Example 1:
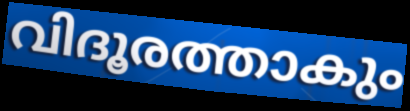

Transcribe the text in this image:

വിദൂരത്താകും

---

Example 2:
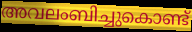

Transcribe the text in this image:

അവലംബിച്ചുകൊണ്ട്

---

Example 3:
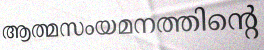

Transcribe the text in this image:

ആത്മസംയമനത്തിന്റെ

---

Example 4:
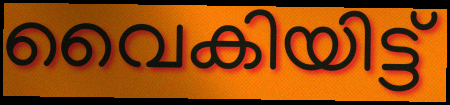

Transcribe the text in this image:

വൈകിയിട്ട്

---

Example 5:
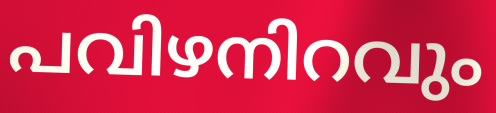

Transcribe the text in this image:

പവിഴനിറവും